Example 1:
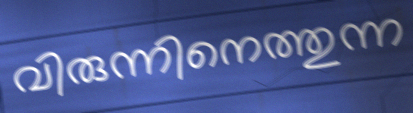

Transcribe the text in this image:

വിരുന്നിനെത്തുന്ന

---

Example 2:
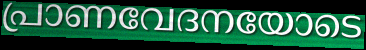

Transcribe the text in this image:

പ്രാണവേദനയോടെ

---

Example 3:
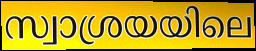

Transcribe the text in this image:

സ്വാശ്രയയിലെ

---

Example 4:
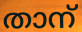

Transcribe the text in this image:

താന്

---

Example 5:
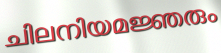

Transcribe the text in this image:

ചിലനിയമജ്ഞരും